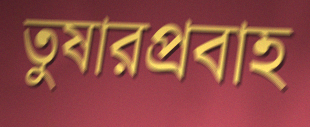
তুষারপ্রবাহ